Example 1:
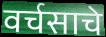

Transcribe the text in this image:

वर्चसाचे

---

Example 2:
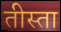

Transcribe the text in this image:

तीस्ता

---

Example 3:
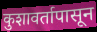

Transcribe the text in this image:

कुशावर्तापासून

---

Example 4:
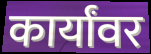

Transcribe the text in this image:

कार्यांवर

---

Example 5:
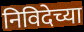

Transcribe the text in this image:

निविदेच्या